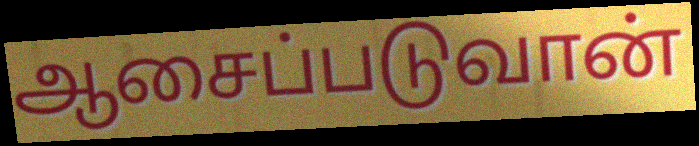
ஆசைப்படுவான்